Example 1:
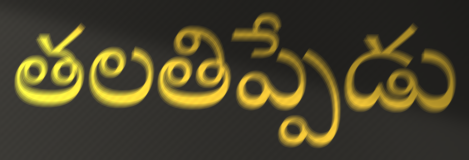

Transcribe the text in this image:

తలతిప్పేడు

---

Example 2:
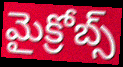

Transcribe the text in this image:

మైక్రోబ్స్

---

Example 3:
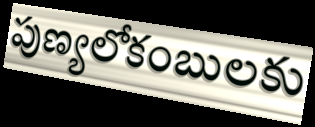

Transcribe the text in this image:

పుణ్యలోకంబులకు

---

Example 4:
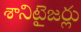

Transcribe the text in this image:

శానిటైజర్లు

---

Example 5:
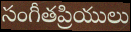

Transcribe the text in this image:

సంగీతప్రియులు